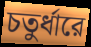
চতুর্ধারে